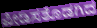
ಪೀಡಿಸತೊಡಗಿದ